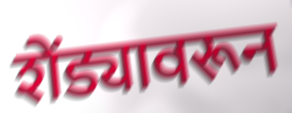
शेंड्यावरून